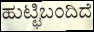
ಹುಟ್ಟಿಬಂದಿದೆ